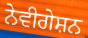
ਨੇਵੀਗੇਸ਼ਨ